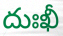
దుఃఖీ